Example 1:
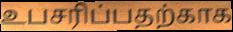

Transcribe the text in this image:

உபசரிப்பதற்காக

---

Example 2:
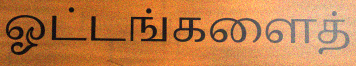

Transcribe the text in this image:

ஓட்டங்களைத்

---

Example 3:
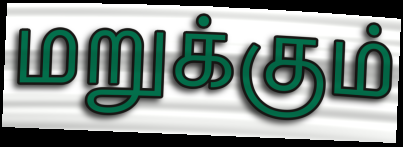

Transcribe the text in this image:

மறுக்கும்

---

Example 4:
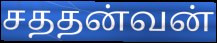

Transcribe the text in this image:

சததன்வன்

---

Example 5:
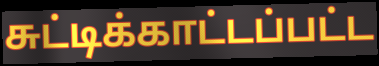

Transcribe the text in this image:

சுட்டிக்காட்டப்பட்ட